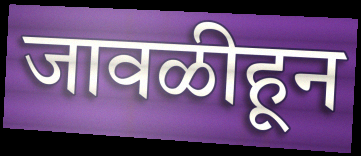
जावळीहून